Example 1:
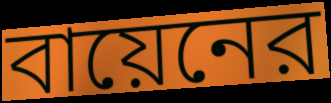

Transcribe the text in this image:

বায়েনের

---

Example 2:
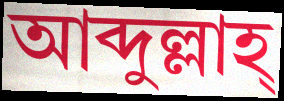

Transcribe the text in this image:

আব্দুল্লাহ্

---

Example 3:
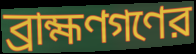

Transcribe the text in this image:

ব্রাহ্মণগণের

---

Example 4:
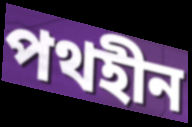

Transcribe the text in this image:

পথহীন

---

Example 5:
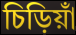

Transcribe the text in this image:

চিড়িয়াঁ